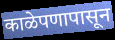
काळेपणापासून